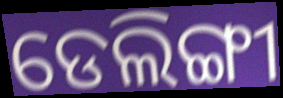
ଡେଲିଙ୍ଗୀ